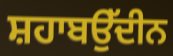
ਸ਼ਹਾਬਉੱਦੀਨ